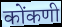
कोंकणी